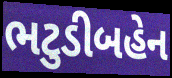
ભટુડીબહેન